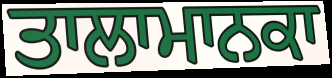
ਤਾਲਾਮਾਨਕਾ